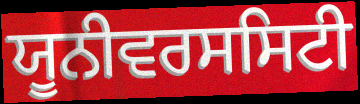
ਯੂਨੀਵਰਸਸਿਟੀ